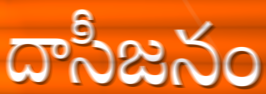
దాసీజనం